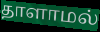
தாளாமல்